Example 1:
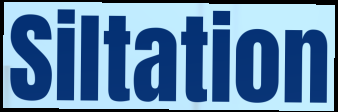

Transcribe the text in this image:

Siltation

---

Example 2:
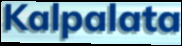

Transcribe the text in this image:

Kalpalata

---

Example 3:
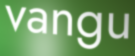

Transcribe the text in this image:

vangu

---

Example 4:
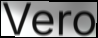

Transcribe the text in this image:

Vero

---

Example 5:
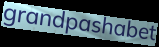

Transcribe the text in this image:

grandpashabet